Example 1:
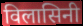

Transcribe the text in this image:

विलासिनी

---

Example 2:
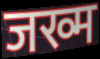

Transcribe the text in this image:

जख्म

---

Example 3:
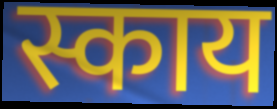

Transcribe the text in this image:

स्काय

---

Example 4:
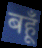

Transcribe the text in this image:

बहूँ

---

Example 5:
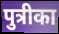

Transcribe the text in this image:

पुत्रीका